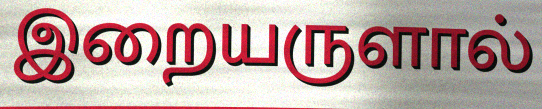
இறையருளால்